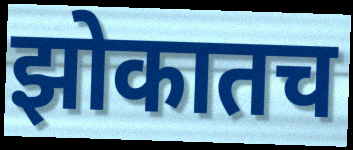
झोकातच